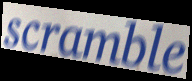
scramble